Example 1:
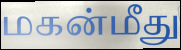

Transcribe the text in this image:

மகன்மீது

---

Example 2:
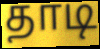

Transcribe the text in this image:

தாடி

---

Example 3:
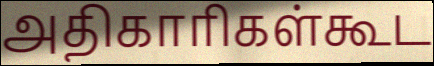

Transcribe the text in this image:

அதிகாரிகள்கூட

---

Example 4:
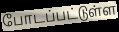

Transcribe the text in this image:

போடப்பட்டுள்ள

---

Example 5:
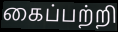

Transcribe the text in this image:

கைப்பற்றி